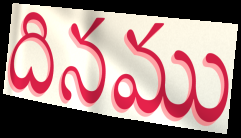
దినము